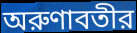
অরুণাবতীর